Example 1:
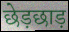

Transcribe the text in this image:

छेड़छाड़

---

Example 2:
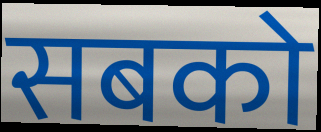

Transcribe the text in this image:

सबको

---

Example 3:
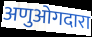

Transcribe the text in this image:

अणुओगदारा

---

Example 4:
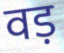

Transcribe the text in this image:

वड़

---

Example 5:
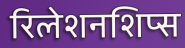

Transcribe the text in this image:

रिलेशनशिप्स